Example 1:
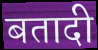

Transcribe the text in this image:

बतादी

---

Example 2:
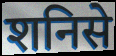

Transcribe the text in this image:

शनिसे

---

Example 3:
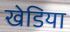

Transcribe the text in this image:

खेडिया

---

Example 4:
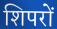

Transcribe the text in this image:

शिपरों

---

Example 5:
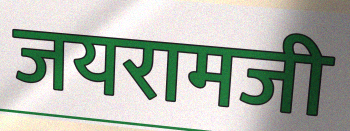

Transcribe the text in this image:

जयरामजी